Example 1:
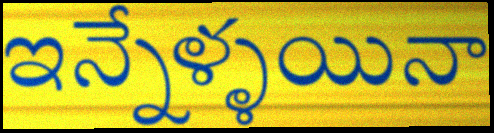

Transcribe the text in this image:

ఇన్నేళ్ళయినా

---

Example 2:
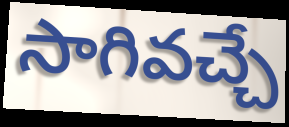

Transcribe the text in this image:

సాగివచ్చే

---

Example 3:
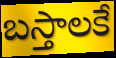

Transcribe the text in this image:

బస్తాలకే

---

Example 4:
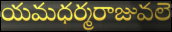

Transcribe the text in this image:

యమధర్మరాజువలె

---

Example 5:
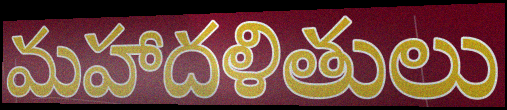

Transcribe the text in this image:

మహాదళితులు